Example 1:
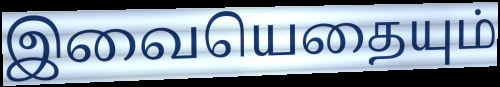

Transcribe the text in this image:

இவையெதையும்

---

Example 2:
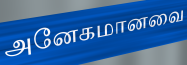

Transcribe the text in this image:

அனேகமானவை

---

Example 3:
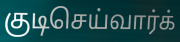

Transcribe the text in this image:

குடிசெய்வார்க்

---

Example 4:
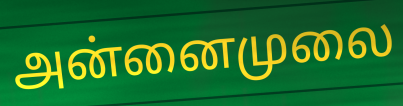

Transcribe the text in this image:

அன்னைமுலை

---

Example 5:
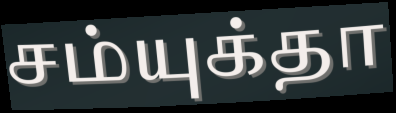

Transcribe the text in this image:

சம்யுக்தா